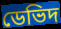
ডেভিদ